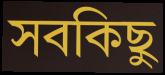
সবকিছু